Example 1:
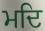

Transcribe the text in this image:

ਮਦਿ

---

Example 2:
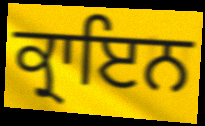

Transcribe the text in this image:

ਕ੍ਰਾਇਨ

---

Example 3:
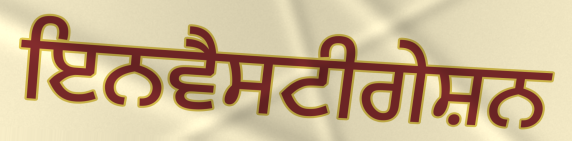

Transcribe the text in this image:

ਇਨਵੈਸਟੀਗੇਸ਼ਨ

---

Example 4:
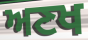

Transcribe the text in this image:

ਅਣਖ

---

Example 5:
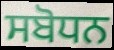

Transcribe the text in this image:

ਸਬੋਧਨ